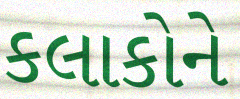
કલાકોને